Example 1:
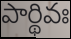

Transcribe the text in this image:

పార్థివః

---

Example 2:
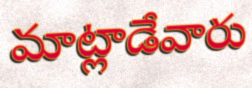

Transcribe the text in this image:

మాట్లాడేవారు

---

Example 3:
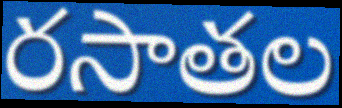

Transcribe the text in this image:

రసాతల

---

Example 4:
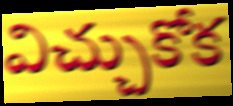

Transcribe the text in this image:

విచ్చుకోక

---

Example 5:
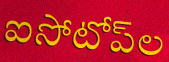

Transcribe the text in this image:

ఐసోటోప్‌ల